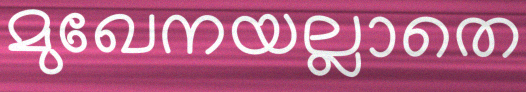
മുഖേനയല്ലാതെ